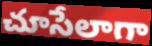
చూసేలాగా